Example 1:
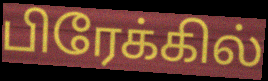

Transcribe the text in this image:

பிரேக்கில்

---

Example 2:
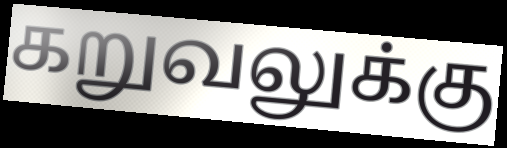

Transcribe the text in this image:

கறுவலுக்கு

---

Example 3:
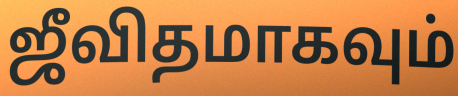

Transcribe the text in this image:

ஜீவிதமாகவும்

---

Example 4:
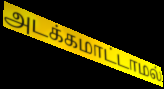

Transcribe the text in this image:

அடக்கமாட்டாமல்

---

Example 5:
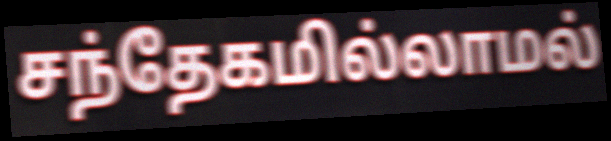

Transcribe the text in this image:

சந்தேகமில்லாமல்